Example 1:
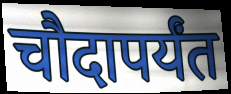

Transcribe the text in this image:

चौदापर्यंत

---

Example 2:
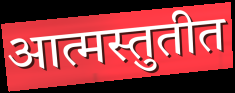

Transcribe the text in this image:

आत्मस्तुतीत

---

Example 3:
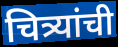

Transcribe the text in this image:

चित्र्यांची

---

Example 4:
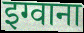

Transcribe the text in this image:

इग्वाना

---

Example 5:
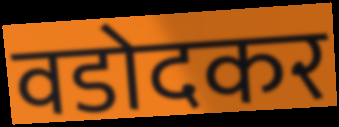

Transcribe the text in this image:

वडोदकर